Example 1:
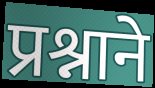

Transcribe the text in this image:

प्रश्नाने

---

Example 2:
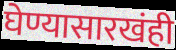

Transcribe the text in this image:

घेण्यासारखंही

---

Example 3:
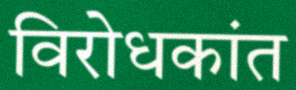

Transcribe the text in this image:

विरोधकांत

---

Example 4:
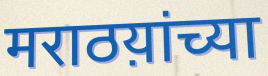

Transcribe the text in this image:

मराठय़ांच्या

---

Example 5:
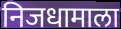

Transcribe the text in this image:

निजधामाला